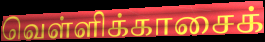
வெள்ளிக்காசைக்